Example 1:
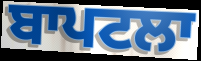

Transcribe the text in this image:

ਬਾਪਟਲਾ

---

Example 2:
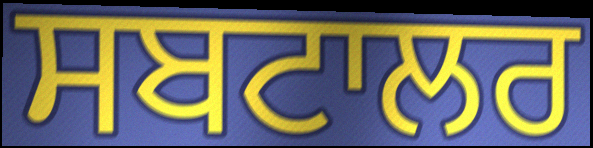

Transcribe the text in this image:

ਸਬਟਾਲਰ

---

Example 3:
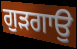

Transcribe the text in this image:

ਗੁੜਗਾਉ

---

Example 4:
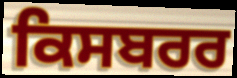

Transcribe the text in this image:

ਕਿਸਬਰਰ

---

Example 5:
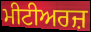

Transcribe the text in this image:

ਮੀਟੀਅਰਜ਼